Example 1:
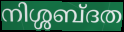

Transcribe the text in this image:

നിശ്ശബ്ദത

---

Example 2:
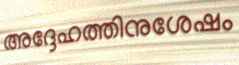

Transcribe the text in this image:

അദ്ദേഹത്തിനുശേഷം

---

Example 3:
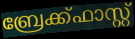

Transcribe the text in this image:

ബ്രേക്ക്ഫാസ്റ്റ്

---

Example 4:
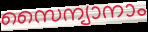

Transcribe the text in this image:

സൈന്യാനാം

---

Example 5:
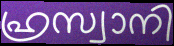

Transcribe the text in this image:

ഹ്രസ്വാനി